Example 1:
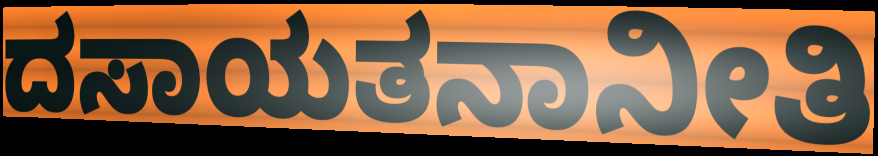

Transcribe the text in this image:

ದಸಾಯತನಾನೀತಿ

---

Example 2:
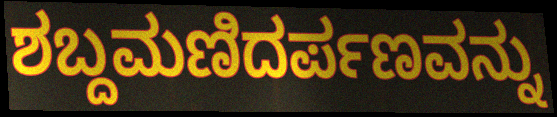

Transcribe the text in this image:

ಶಬ್ದಮಣಿದರ್ಪಣವನ್ನು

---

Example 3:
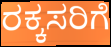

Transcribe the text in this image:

ರಕ್ಕಸರಿಗೆ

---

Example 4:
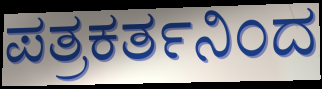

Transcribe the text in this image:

ಪತ್ರಕರ್ತನಿಂದ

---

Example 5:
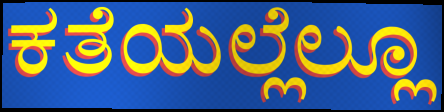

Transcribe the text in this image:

ಕತೆಯಲ್ಲೆಲ್ಲೂ